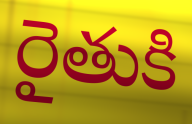
రైతుకి